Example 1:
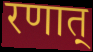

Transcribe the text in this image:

रणात्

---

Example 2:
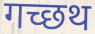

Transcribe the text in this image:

गच्छथ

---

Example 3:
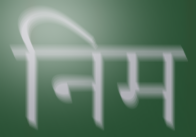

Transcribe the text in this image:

निम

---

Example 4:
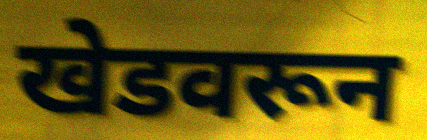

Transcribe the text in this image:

खेडवरून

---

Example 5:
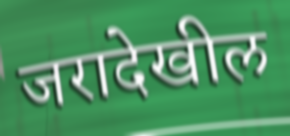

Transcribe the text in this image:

जरादेखील